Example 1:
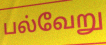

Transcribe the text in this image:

பல்வேறு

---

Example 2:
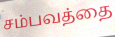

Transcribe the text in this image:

சம்பவத்தை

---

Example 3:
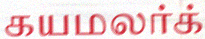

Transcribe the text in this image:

கயமலர்க்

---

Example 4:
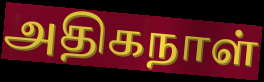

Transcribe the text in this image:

அதிகநாள்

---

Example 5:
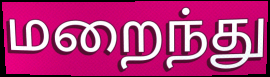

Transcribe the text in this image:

மறைந்து